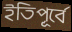
ইতিপূৰ্বে